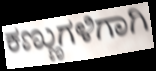
ಕಣ್ಣುಗಳಿಗಾಗಿ